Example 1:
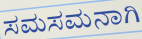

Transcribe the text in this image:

ಸಮಸಮನಾಗಿ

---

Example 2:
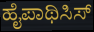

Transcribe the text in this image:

ಹೈಪಾಥಿಸಿಸ್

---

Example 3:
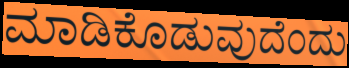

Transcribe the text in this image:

ಮಾಡಿಕೊಡುವುದೆಂದು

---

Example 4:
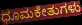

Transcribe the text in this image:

ಧೂಮಕೇತುಗಳು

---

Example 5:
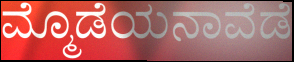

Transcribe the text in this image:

ಮ್ಮೊಡೆಯನಾವೆಡೆ